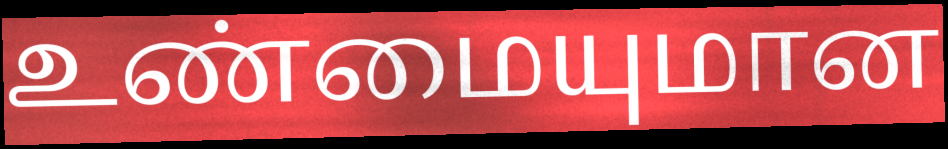
உண்மையுமான